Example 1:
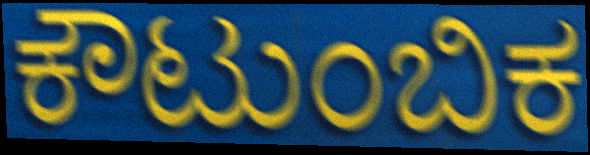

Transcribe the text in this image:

ಕೌಟುಂಬಿಕ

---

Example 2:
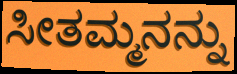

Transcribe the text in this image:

ಸೀತಮ್ಮನನ್ನು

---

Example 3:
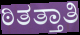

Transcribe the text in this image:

ಠಿತತ್ತಾತಿ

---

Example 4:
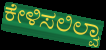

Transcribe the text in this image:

ಕೇಳಿಸಲಿಲ್ವಾ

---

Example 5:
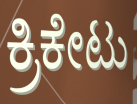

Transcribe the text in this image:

ಕ್ರಿಕೇಟು